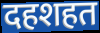
दहशहत